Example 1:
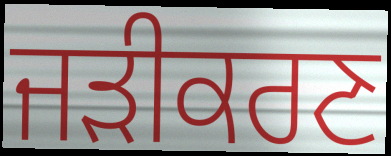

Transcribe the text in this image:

ਜੜੀਕਰਣ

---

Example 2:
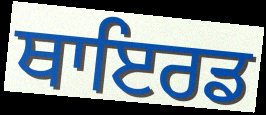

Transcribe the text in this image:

ਥਾਇਰਡ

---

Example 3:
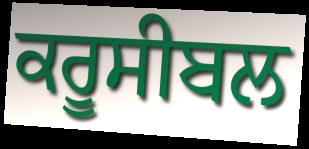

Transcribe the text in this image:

ਕਰੂਸੀਬਲ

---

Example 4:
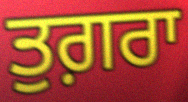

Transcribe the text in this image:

ਤੁਗ਼ਰਾ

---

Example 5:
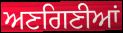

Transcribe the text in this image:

ਅਣਗਿਣੀਆਂ